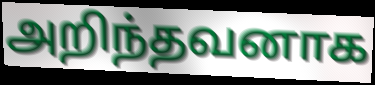
அறிந்தவனாக